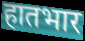
हातभार